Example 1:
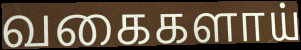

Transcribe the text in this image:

வகைகளாய்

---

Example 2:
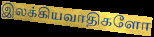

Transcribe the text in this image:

இலக்கியவாதிகளோ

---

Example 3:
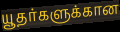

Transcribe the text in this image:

யூதர்களுக்கான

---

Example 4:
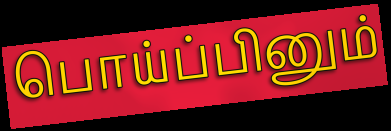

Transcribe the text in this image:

பொய்ப்பினும்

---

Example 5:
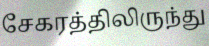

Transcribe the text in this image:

சேகரத்திலிருந்து